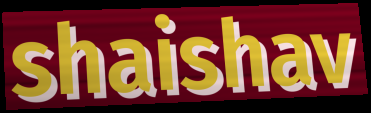
shaishav